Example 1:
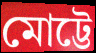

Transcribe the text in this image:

মোট্টে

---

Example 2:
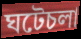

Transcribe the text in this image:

ঘটেচলা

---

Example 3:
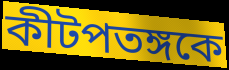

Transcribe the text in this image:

কীটপতঙ্গকে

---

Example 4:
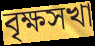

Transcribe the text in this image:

বৃক্ষসখা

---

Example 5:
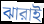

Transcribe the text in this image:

ঝারাই